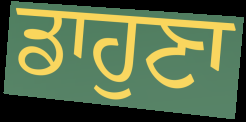
ਡਾਹੁਣਾ